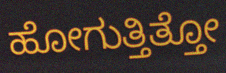
ಹೋಗುತ್ತಿತ್ತೋ